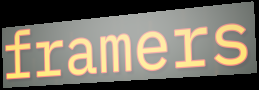
framers